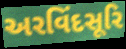
અરવિંદસૂરિ